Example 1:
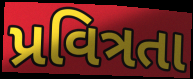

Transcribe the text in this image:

પ્રવિત્રતા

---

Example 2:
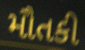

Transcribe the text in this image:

મૌતકી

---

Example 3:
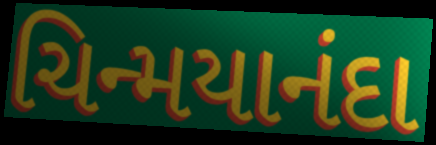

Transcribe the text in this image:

ચિન્મયાનંદા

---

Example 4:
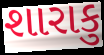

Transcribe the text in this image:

શારાકુ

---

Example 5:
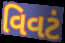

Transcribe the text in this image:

વિવટં